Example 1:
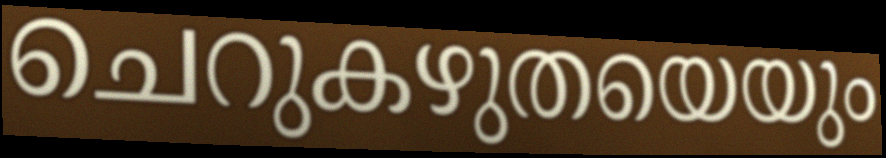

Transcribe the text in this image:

ചെറുകഴുതയെയും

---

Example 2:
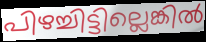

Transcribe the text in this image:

പിഴച്ചിട്ടില്ലെങ്കിൽ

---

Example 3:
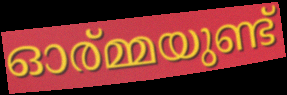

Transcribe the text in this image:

ഓര്മ്മയുണ്ട്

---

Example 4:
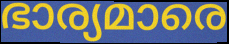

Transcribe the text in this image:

ഭാര്യമാരെ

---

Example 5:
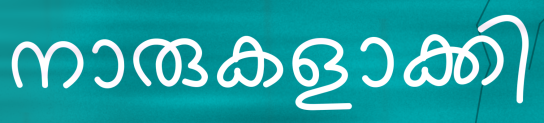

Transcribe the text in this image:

നാരുകളാക്കി